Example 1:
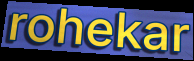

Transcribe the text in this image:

rohekar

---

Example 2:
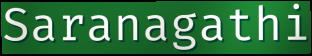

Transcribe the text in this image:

Saranagathi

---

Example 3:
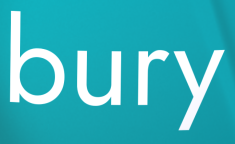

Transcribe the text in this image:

bury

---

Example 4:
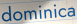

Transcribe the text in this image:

dominica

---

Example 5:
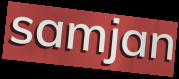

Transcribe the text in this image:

samjan